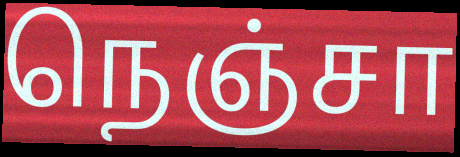
நெஞ்சா